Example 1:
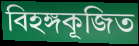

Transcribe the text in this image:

বিহঙ্গকূজিত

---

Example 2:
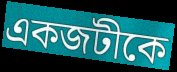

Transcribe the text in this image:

একজটীকে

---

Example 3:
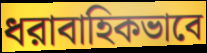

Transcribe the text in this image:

ধরাবাহিকভাবে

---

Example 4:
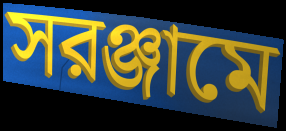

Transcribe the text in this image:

সরঞ্জামে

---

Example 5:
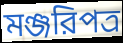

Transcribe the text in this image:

মঞ্জরিপত্র